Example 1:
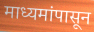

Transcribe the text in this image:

माध्यमांपासून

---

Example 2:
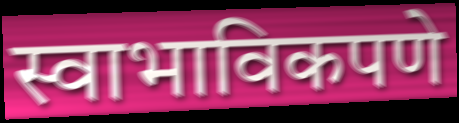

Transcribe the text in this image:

स्वाभाविकपणे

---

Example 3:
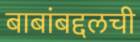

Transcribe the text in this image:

बाबांबद्दलची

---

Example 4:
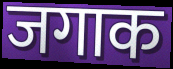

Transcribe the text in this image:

जगाक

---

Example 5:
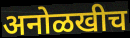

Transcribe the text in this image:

अनोळखीच